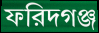
ফরিদগঞ্জ